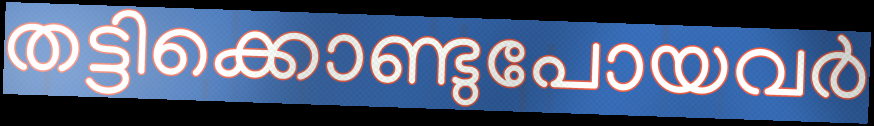
തട്ടിക്കൊണ്ടുപോയവർ